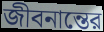
জীবনান্তের